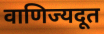
वाणिज्यदूत